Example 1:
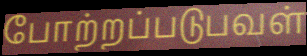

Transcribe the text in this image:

போற்றப்படுபவள்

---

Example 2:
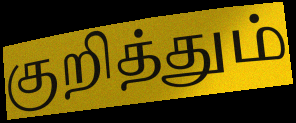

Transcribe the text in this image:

குறித்தும்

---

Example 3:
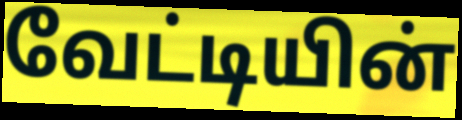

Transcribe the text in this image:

வேட்டியின்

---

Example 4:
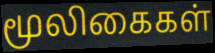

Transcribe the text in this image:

மூலிகைகள்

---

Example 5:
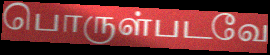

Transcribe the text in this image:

பொருள்படவே